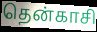
தென்காசி